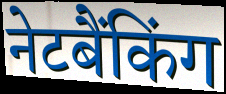
नेटबैंकिंग